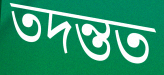
তদন্তত